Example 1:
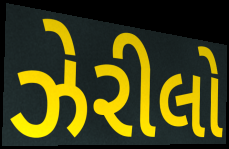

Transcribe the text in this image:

ઝેરીલો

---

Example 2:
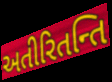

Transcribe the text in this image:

અતીરિતન્તિ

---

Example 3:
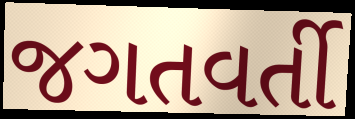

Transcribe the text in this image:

જગતવર્તી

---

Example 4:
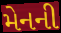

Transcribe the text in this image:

મેનની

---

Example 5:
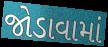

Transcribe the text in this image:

જોડાવામાં